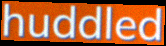
huddled